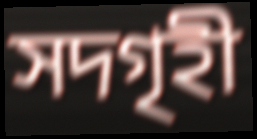
সদগৃহী